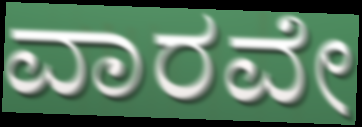
ವಾರವೇ